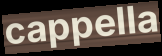
cappella